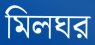
মিলঘর